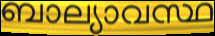
ബാല്യാവസ്ഥ